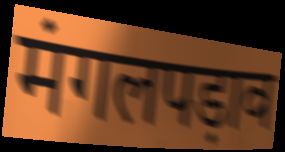
मंगलपड़ाव